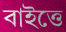
বাইত্তে